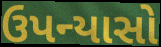
ઉપન્યાસો